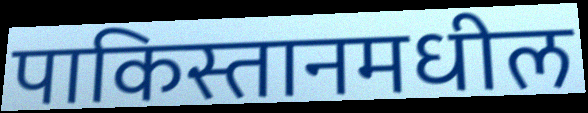
पाकिस्तानमधील